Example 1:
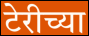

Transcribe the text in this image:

टेरीच्या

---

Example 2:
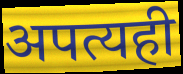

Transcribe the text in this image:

अपत्यही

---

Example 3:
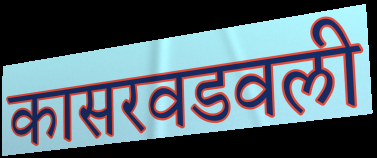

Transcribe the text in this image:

कासरवडवली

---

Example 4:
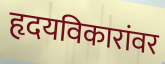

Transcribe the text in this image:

हृदयविकारांवर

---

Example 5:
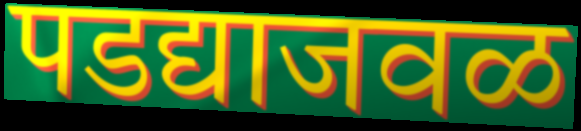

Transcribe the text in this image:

पडद्याजवळ